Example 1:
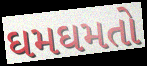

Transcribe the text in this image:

ઘમઘમતો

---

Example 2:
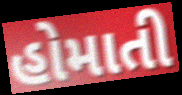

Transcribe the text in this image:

હોમાતી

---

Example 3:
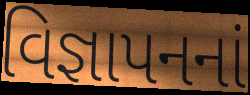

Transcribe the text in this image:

વિજ્ઞાપનનાં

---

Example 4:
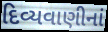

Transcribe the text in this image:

દિવ્યવાણીનાં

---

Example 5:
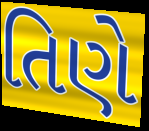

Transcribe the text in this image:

તિણે